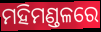
ମହିମଣ୍ଡଳରେ